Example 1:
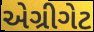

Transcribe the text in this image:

એગ્રીગેટ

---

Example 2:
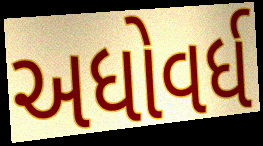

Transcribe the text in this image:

અધોવર્ધ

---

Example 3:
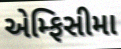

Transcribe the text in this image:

એમ્ફિસીમા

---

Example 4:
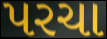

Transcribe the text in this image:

પરચા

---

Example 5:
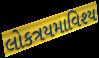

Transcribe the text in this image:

લોકત્રયમાવિશ્ય